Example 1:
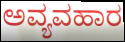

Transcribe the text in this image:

ಅವ್ಯವಹಾರ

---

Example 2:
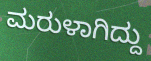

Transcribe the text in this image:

ಮರುಳಾಗಿದ್ದು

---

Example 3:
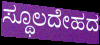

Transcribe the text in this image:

ಸ್ಥೂಲದೇಹದ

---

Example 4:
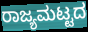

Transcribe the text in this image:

ರಾಜ್ಯಮಟ್ಟದ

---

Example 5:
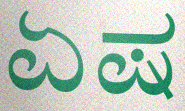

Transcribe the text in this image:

ಏಷ